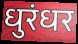
धुरंधर